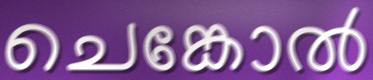
ചെങ്കോൽ